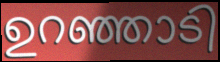
ഉറഞ്ഞാടി